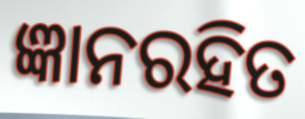
ଜ୍ଞାନରହିତ